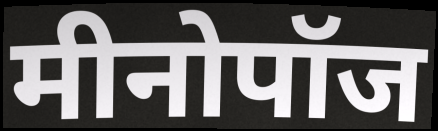
मीनोपॉज